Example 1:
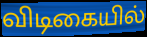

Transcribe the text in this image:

விடிகையில்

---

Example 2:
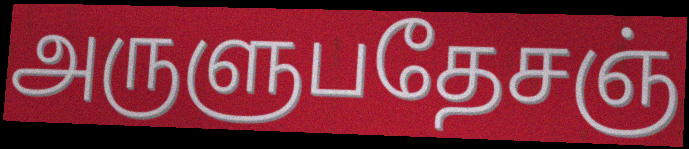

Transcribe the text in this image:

அருளுபதேசஞ்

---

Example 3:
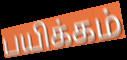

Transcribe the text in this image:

பயிக்கம்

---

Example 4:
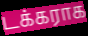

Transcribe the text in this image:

டக்கராக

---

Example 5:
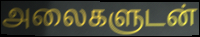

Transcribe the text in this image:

அலைகளுடன்